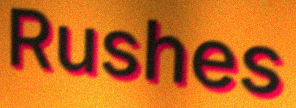
Rushes